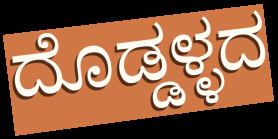
ದೊಡ್ಡಳ್ಳದ